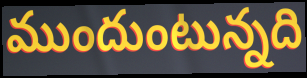
ముందుంటున్నది